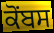
ਕੋਂਬਸ